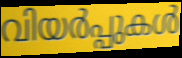
വിയർപ്പുകൾ